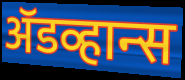
ॲडव्हान्स